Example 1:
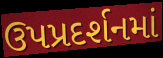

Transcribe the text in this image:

ઉપપ્રદર્શનમાં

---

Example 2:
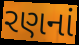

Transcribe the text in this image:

રણનાં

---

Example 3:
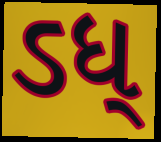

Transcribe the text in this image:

ઽધ્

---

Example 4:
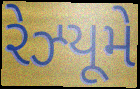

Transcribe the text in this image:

રેઝ્યૂમે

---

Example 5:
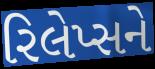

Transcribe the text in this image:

રિલેપ્સને